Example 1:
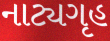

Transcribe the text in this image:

નાટ્યગૃહ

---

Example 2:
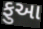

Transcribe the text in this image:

ફુઆ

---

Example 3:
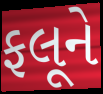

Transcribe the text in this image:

ફલૂને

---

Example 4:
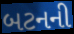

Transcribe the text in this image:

બટનની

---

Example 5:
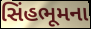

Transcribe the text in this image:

સિંહભૂમના